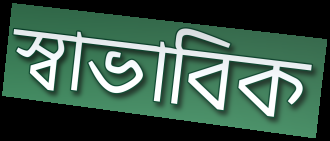
স্বাভাবিক